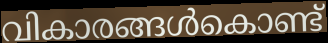
വികാരങ്ങൾകൊണ്ട്